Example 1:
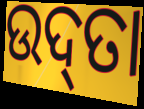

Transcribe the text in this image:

ଉଦ୍‌ତା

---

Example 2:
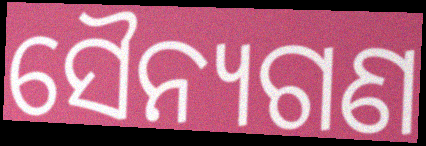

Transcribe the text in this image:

ସୈନ୍ୟଗଣ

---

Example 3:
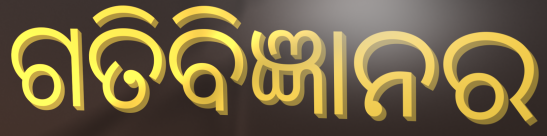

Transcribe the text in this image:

ଗତିବିଜ୍ଞାନର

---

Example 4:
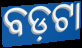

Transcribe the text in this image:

ବଡ଼ଟା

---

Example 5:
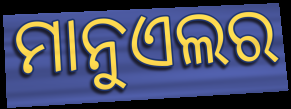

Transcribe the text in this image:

ମାନୁଏଲର